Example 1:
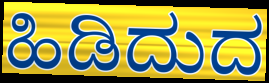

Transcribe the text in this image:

ಹಿಡಿದುದ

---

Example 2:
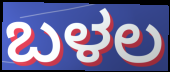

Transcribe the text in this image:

ಬಳಲ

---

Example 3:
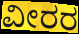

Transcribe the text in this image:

ವೀರರ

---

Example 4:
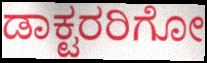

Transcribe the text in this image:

ಡಾಕ್ಟರರಿಗೋ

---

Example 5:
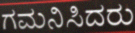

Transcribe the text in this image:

ಗಮನಿಸಿದರು